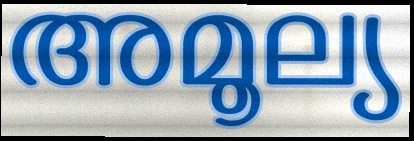
അമൂല്യ